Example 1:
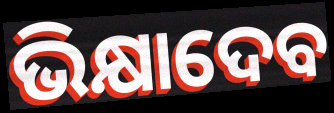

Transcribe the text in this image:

ଭିକ୍ଷାଦେବ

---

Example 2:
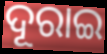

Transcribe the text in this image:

ଦୂରାଇ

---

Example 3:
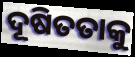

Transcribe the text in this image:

ଦୂଷିତତାକୁ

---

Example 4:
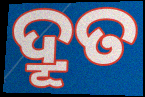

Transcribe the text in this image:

ଦ୍ରୂତ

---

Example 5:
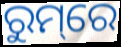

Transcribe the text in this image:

ରୁମ୍‌ରେ